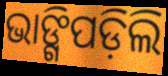
ଭାଙ୍ଗିପଡ଼ିଲି